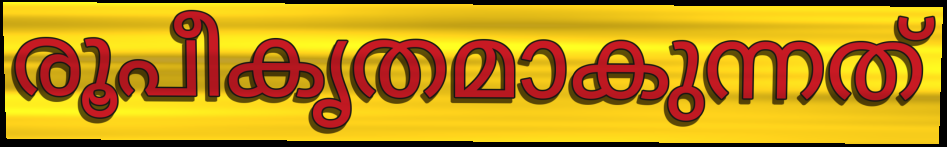
രൂപീകൃതമാകുന്നത്